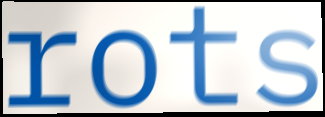
rots